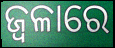
ଜ୍ୱଳାରେ